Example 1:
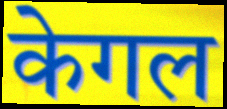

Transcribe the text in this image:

केगल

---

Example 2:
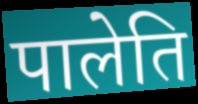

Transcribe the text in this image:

पालेति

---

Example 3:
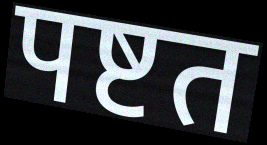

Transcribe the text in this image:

पष्टत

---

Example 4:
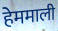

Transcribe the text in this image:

हेममाली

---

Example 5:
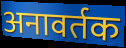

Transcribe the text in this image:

अनावर्तक